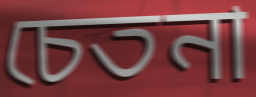
চেতনা